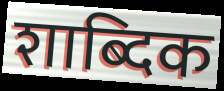
शाब्दिक